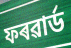
ফৰৱাৰ্ড